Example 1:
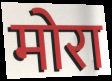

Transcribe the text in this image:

मोरा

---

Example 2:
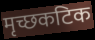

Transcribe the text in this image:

मृच्छकटिक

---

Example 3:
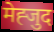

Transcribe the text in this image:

मेह्जुद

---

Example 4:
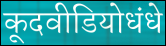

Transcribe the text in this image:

कूदवीडियोधंधे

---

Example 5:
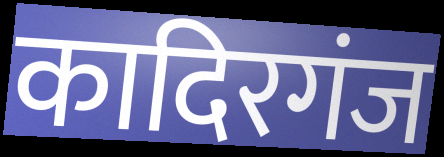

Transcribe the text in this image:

कादिरगंज